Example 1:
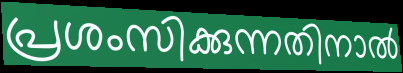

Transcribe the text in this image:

പ്രശംസിക്കുന്നതിനാൽ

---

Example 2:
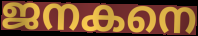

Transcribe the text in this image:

ജനകനെ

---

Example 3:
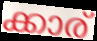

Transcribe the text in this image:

ക്കാര്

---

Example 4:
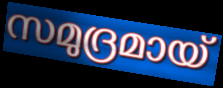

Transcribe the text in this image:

സമുദ്രമായ്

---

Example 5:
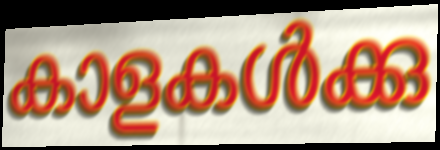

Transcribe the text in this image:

കാളകൾക്കു